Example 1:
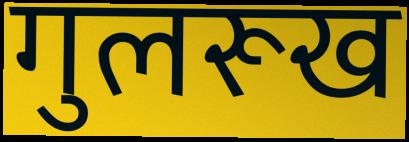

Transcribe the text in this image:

गुलरूख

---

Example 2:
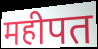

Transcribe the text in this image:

महीपत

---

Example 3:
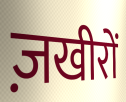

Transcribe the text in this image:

ज़खीरों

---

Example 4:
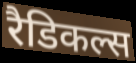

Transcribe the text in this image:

रैडिकल्स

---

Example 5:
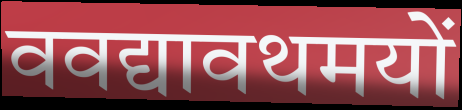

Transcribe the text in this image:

ववद्यावथमयों